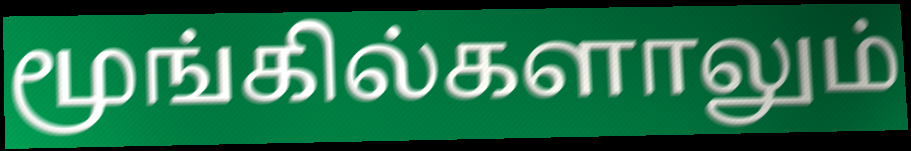
மூங்கில்களாலும்